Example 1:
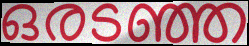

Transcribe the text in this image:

ഒരടഞ്ഞ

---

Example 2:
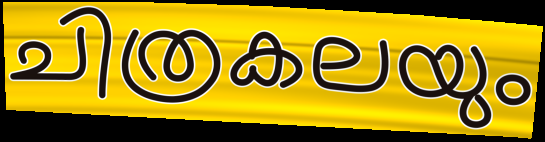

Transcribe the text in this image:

ചിത്രകലയും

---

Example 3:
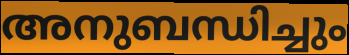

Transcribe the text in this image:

അനുബന്ധിച്ചും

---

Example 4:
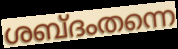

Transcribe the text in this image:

ശബ്ദംതന്നെ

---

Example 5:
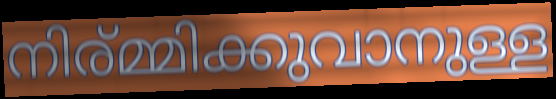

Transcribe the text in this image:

നിര്മ്മിക്കുവാനുള്ള